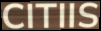
CITIIS